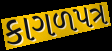
કાગળપત્ર